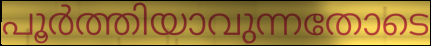
പൂർത്തിയാവുന്നതോടെ